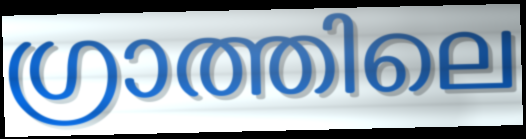
ഗ്രാത്തിലെ